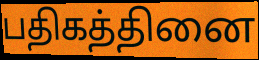
பதிகத்தினை